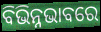
ବିଭିନ୍ନଭାବରେ